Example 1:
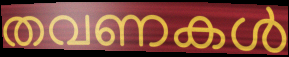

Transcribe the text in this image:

തവണകൾ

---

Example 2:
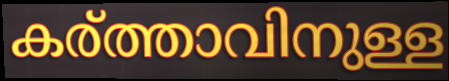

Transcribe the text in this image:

കര്ത്താവിനുള്ള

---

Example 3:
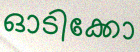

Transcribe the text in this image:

ഓടിക്കോ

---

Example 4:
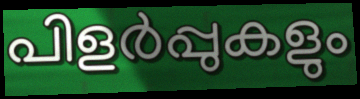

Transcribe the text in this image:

പിളർപ്പുകളും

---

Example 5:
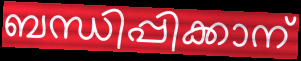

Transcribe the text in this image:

ബന്ധിപ്പിക്കാന്